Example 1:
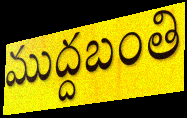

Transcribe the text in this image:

ముద్దబంతి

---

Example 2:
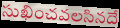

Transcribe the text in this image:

సుఖించవలసినదే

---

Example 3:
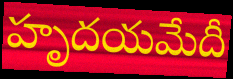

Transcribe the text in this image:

హృదయమేదీ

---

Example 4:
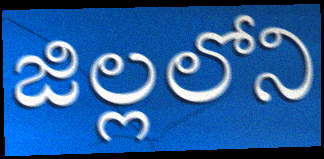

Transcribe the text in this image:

జిల్లలోని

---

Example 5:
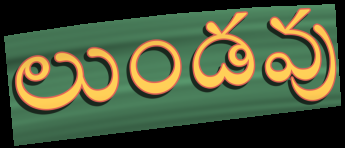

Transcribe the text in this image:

లుండవు